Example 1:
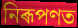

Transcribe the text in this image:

নিৰূপণত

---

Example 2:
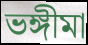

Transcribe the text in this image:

ভঙ্গীমা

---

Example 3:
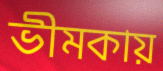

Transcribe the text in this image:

ভীমকায়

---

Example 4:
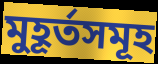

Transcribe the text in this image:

মুহূৰ্তসমূহ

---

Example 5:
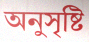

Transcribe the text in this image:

অনুসৃষ্টি